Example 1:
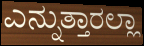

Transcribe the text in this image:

ಎನ್ನುತ್ತಾರಲ್ಲಾ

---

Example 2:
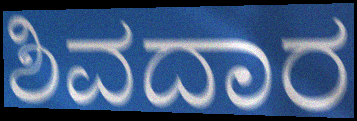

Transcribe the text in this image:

ಶಿವದಾರ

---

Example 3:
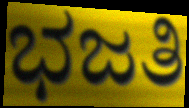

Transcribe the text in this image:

ಭಜತಿ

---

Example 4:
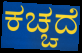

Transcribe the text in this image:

ಕಚ್ಚದೆ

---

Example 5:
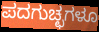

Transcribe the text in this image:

ಪದಗುಚ್ಛಗಳೂ